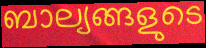
ബാല്യങ്ങളുടെ